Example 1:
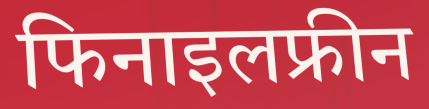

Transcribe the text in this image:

फिनाइलफ्रीन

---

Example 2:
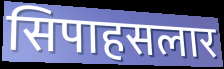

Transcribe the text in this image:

सिपाहसलार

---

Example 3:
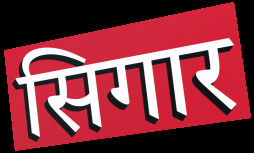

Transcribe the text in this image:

सिगार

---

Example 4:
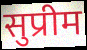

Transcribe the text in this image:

सुप्रीम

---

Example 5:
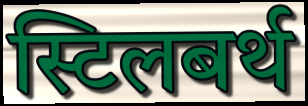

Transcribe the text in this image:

स्टिलबर्थ